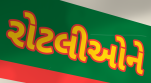
રોટલીઓને